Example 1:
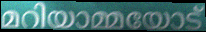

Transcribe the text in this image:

മറിയാമ്മയോട്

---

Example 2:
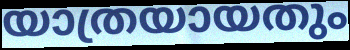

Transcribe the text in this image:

യാത്രയായതും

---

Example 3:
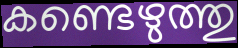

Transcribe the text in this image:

കണ്ടെഴുത്തു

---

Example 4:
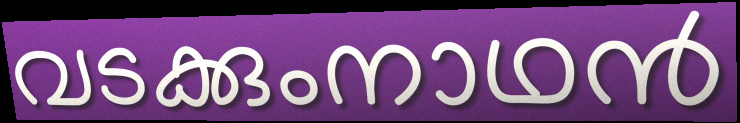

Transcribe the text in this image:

വടക്കുംനാഥൻ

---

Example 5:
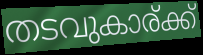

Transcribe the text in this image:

തടവുകാര്ക്ക്